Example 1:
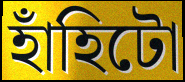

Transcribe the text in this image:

হাঁহিটো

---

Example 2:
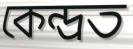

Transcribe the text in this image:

কেন্দ্ৰত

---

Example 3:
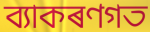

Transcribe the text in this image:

ব্যাকৰণগত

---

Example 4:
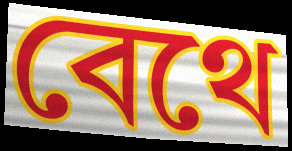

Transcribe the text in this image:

বেথে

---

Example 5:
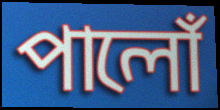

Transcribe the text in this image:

পালোঁ